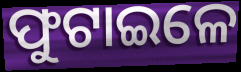
ଫୁଟାଇଳେ